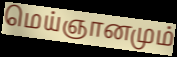
மெய்ஞானமும்